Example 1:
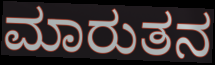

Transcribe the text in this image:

ಮಾರುತನ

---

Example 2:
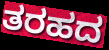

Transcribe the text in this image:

ತರಹದ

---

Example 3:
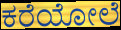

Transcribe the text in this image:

ಕರೆಯೋಲೆ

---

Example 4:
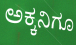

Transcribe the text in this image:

ಅಕ್ಕನಿಗೂ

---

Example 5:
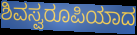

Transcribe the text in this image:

ಶಿವಸ್ವರೂಪಿಯಾದ